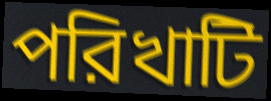
পরিখাটি